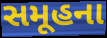
સમૂહના